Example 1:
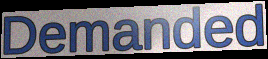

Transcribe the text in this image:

Demanded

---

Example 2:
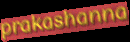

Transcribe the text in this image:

prakashanna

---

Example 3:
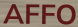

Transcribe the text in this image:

AFFO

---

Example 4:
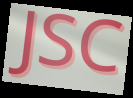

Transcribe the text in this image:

JSC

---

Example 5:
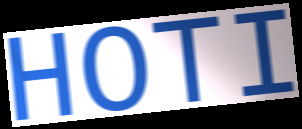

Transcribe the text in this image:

HOTI